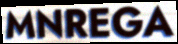
MNREGA